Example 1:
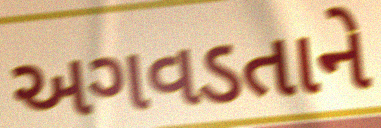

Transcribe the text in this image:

અગવડતાને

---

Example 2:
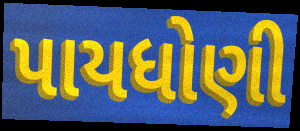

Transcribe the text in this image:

પાયધોણી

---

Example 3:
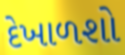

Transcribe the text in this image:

દેખાળશો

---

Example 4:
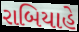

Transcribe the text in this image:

રાબિયાહે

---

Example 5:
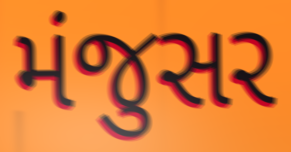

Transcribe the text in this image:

મંજુસર